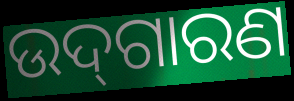
ଉଦ୍‌ଗାରଣ